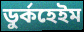
ডুর্কহেইম